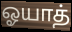
ஓயாத்